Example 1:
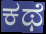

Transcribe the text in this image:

ಕಥೆ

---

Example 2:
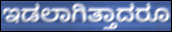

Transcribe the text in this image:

ಇಡಲಾಗಿತ್ತಾದರೂ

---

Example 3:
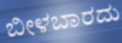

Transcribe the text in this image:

ಬೀಳಬಾರದು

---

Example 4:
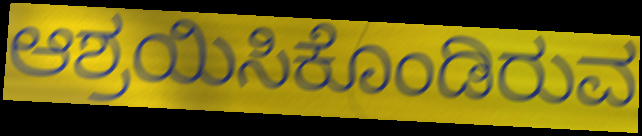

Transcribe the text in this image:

ಆಶ್ರಯಿಸಿಕೊಂಡಿರುವ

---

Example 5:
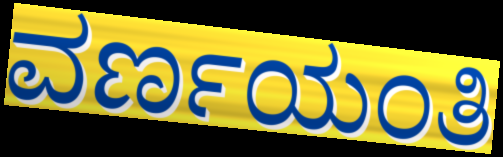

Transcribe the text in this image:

ವರ್ಣಯಂತಿ